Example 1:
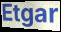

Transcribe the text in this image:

Etgar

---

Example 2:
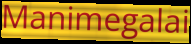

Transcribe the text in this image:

Manimegalai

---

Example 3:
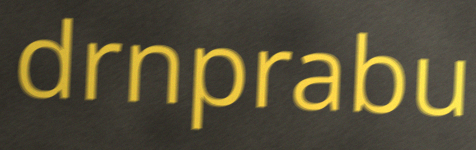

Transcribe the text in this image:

drnprabu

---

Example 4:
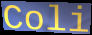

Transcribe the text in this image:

Coli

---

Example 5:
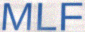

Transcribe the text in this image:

MLF